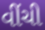
વીંચી